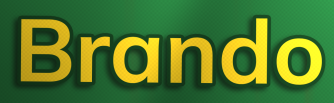
Brando